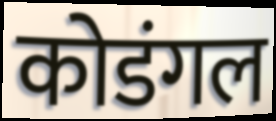
कोडंगल